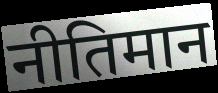
नीतिमान